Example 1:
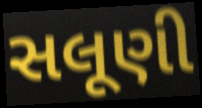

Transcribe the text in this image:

સલૂણી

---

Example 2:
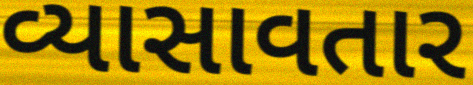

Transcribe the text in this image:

વ્યાસાવતાર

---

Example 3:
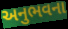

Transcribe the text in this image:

અનુભવના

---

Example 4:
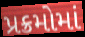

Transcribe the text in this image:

પ્રક્રમોમાં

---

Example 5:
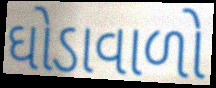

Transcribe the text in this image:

ઘોડાવાળો